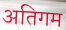
अतिगम